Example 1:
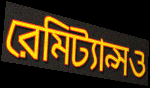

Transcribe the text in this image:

রেমিট্যান্সও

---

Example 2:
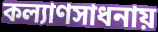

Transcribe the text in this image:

কল্যাণসাধনায়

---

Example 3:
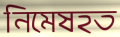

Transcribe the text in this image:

নিমেষহত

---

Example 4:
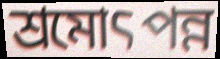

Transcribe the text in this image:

শ্রমোৎপন্ন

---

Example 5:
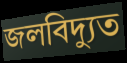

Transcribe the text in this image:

জলবিদ্যুত